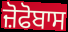
ਜ਼ੋਫੋਬਾਸ